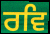
ਰਵਿ